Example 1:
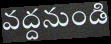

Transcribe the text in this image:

వద్దనుండి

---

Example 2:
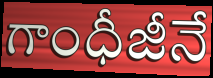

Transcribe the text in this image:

గాంధీజీనే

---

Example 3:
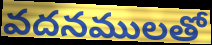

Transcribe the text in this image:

వదనములతో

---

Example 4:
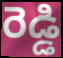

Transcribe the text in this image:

రెడ్డి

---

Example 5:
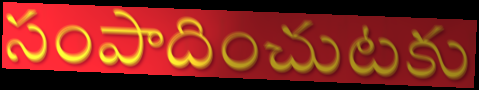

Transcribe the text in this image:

సంపాదించుటకు